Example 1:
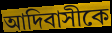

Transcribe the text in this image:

আদিবাসীকে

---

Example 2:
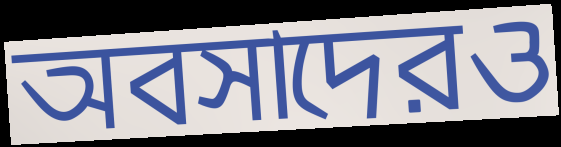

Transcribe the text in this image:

অবসাদেরও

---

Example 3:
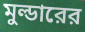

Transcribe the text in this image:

মুল্ডারের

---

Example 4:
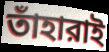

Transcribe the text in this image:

তাঁহারাই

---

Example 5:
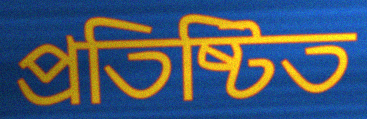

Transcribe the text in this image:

প্রতিষ্টিত